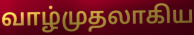
வாழ்முதலாகிய